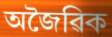
অজৈৱিক